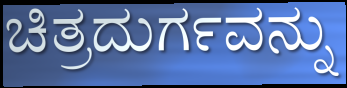
ಚಿತ್ರದುರ್ಗವನ್ನು